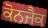
ਕੋਨਜੈਕ